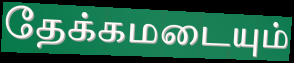
தேக்கமடையும்